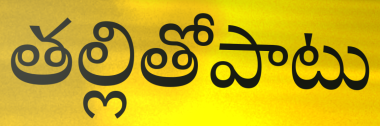
తల్లితోపాటు